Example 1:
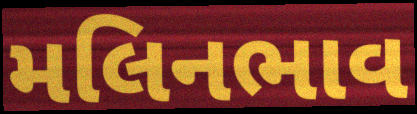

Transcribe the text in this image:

મલિનભાવ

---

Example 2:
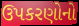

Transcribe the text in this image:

ઉપકરણોનો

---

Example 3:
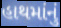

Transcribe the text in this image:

હાથમાંનું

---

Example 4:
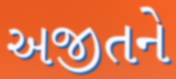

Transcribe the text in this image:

અજીતને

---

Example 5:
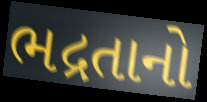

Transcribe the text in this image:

ભદ્રતાનો